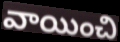
వాయించి